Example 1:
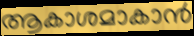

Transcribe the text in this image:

ആകാശമാകാൻ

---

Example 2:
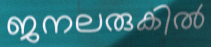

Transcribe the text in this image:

ജനലരുകിൽ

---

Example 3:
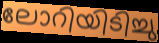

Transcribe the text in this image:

ലോറിയിടിച്ചു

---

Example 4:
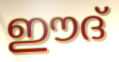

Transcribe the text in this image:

ഈദ്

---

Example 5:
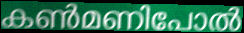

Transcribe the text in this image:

കൺമണിപോൽ